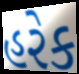
હરેક